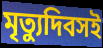
মৃত্যুদিবসই